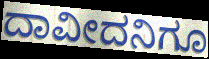
ದಾವೀದನಿಗೂ